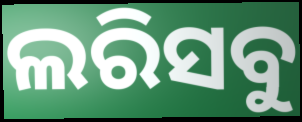
ଲରିସବୁ